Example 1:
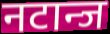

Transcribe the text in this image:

नटान्ज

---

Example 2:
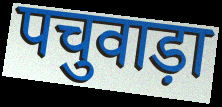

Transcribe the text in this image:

पचुवाड़ा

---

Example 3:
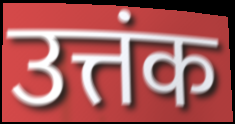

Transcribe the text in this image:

उत्तंक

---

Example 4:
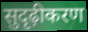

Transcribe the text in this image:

सुदृढ़ीकरण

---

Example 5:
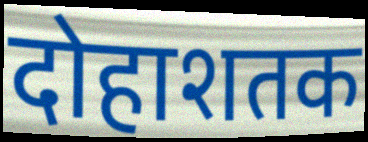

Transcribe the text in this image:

दोहाशतक